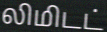
லிமிடட்